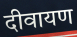
दीवायण